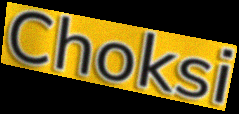
Choksi